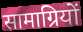
सामाग्रियों